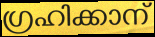
ഗ്രഹിക്കാന്